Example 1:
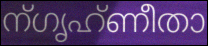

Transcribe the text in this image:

ന്ഗൃഹ്ണീതാ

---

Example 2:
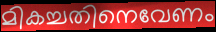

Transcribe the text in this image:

മികച്ചതിനെവേണം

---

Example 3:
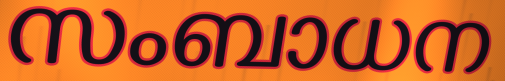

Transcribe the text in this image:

സംബാധന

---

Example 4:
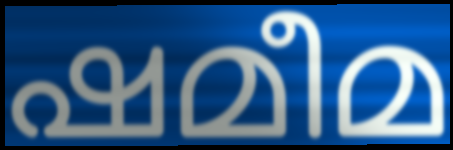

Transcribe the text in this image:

ഷമീമ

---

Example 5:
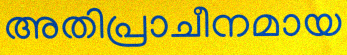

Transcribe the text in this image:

അതിപ്രാചീനമായ